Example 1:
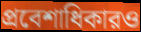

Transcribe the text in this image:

প্রবেশাধিকারও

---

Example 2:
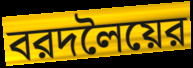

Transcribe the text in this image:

বরদলৈয়ের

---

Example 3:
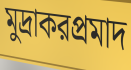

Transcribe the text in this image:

মুদ্রাকরপ্রমাদ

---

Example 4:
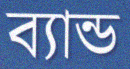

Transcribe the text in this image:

ব্যান্ড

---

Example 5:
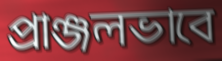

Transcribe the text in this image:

প্রাঞ্জলভাবে